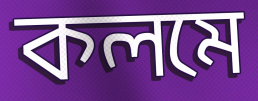
কলমে